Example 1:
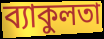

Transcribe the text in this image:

ব্যাকুলতা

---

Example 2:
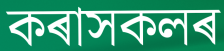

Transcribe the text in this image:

কৰাসকলৰ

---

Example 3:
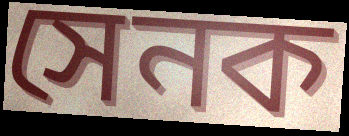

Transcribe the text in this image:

সেনক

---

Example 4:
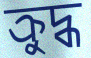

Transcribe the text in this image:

ক্ৰুদ্ধ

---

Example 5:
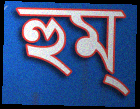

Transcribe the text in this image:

হুম্